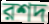
রশদ